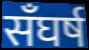
सँघर्ष